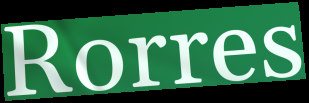
Rorres